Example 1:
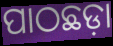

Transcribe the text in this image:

ପାଠଛଡ଼ା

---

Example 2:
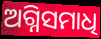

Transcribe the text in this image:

ଅଗ୍ନିସମାଧି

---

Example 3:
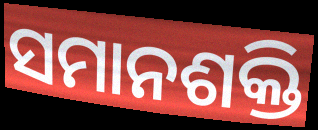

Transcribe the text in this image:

ସମାନଶକ୍ତି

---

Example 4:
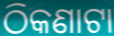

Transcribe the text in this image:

ଠିକଣାଟା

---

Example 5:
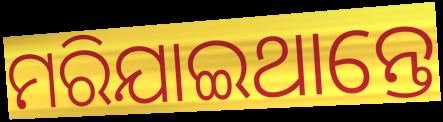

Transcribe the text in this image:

ମରିଯାଇଥାନ୍ତେ